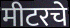
मीटरचे